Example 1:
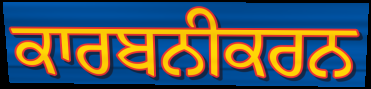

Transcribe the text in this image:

ਕਾਰਬਨੀਕਰਨ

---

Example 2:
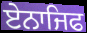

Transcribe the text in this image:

ਏਨਾਜਿਫ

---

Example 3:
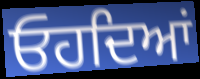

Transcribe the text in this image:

ਓਹਦਿਆਂ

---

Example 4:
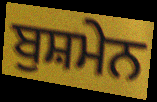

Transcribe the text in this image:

ਬੁਸ਼ਮੇਨ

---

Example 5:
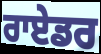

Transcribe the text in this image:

ਰਾਏਡਰ